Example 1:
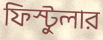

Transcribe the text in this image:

ফিস্টুলার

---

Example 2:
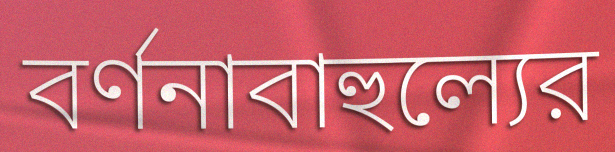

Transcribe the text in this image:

বর্ণনাবাহুল্যের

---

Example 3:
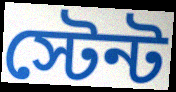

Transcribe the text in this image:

স্টেন্ট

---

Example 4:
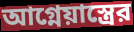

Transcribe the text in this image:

আগ্নেয়াস্ত্রের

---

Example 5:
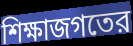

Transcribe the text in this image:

শিক্ষাজগতের